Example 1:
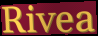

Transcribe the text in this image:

Rivea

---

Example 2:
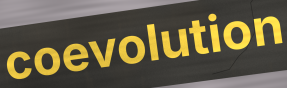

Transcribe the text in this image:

coevolution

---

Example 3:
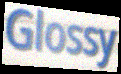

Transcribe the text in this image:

Glossy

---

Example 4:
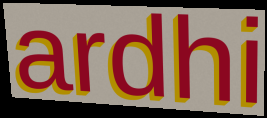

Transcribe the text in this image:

ardhi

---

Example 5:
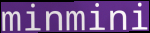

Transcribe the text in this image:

minmini